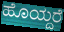
ಹೊಯ್ದರೆ